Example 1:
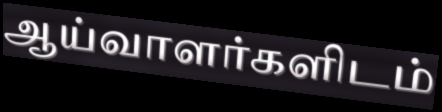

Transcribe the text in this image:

ஆய்வாளர்களிடம்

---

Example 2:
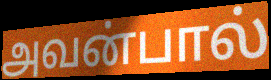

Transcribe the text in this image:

அவன்பால்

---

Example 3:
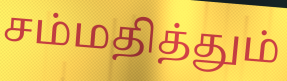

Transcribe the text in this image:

சம்மதித்தும்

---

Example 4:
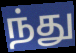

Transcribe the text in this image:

ந்து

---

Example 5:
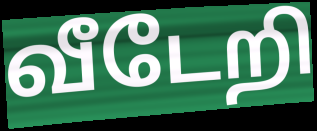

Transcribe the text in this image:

வீடேறி